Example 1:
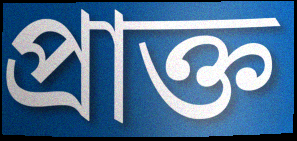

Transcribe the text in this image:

প্রাক্ত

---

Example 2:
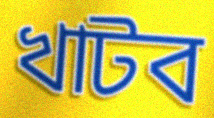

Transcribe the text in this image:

খাটব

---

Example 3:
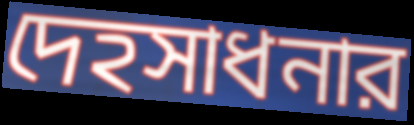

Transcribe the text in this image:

দেহসাধনার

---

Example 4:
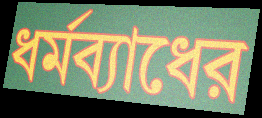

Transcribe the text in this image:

ধর্মব্যাধের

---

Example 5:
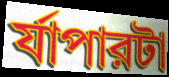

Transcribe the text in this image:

র্যাপারটা